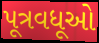
પૂત્રવધૂઓ